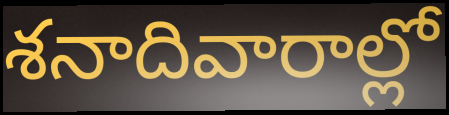
శనాదివారాల్లో